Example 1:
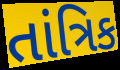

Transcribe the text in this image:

તાંત્રિક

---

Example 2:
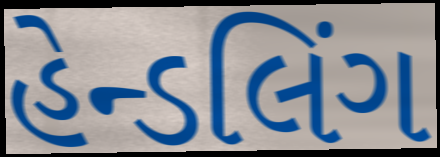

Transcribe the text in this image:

હેન્ડલિંગ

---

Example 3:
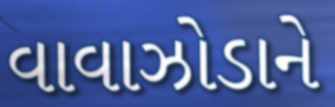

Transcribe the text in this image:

વાવાઝોડાને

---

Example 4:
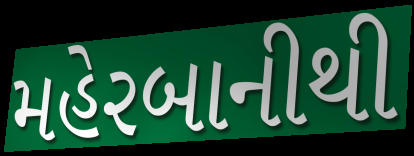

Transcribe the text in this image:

મહેરબાનીથી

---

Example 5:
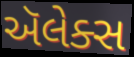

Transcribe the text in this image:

ઍલેક્સ